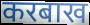
करबाख